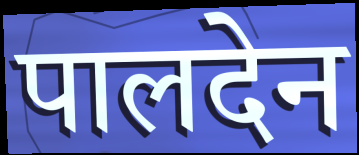
पालदेन